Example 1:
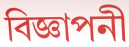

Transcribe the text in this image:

বিজ্ঞাপনী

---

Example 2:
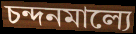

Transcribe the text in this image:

চন্দনমাল্যে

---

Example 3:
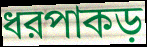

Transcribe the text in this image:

ধরপাকড়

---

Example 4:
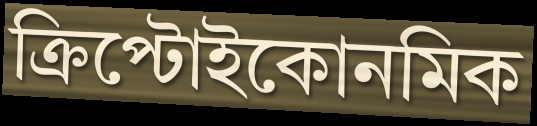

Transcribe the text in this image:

ক্রিপ্টোইকোনমিক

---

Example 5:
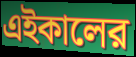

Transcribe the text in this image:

এইকালের